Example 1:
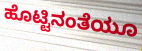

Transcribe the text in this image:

ಹೊಟ್ಟಿನಂತೆಯೂ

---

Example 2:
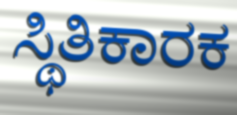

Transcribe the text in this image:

ಸ್ಥಿತಿಕಾರಕ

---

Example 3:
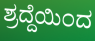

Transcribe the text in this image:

ಶ್ರದ್ದೆಯಿಂದ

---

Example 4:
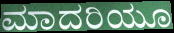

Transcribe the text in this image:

ಮಾದರಿಯೂ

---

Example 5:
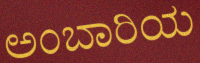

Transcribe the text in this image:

ಅಂಬಾರಿಯ